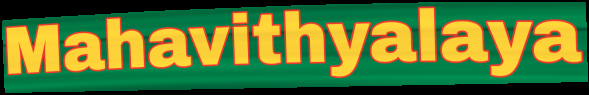
Mahavithyalaya